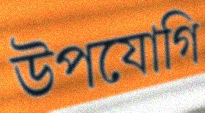
উপযোগি